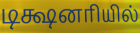
டிக்ஷனரியில்